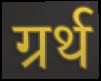
ग्रर्थ